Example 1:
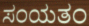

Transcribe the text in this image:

ಸಂಯತಂ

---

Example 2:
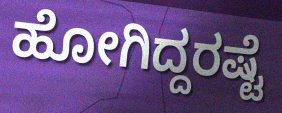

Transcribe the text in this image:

ಹೋಗಿದ್ದರಷ್ಟೆ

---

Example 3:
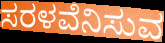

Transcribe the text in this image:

ಸರಳವೆನಿಸುವ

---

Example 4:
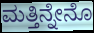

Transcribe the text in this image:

ಮತ್ತಿನ್ನೇನೊ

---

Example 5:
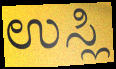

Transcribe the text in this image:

ಉಸ್ಲಿ